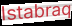
Istabraq